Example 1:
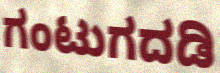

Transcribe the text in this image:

ಗಂಟುಗದಡಿ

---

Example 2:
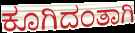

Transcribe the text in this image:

ಕೂಗಿದಂತಾಗಿ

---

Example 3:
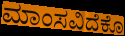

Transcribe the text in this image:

ಮಾಂಸವಿದೆಕೊ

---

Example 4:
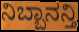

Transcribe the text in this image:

ನಿಬ್ಬಾನನ್ತಿ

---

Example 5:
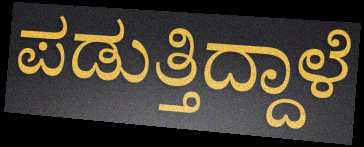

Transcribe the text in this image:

ಪಡುತ್ತಿದ್ದಾಳೆ